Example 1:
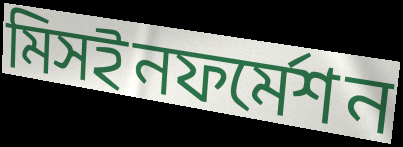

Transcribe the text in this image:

মিসইনফর্মেশন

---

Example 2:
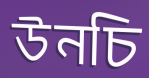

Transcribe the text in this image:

উনচি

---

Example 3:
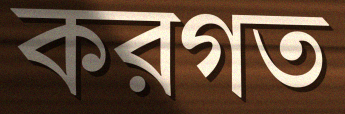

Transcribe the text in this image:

করগত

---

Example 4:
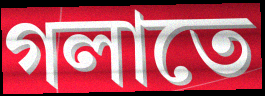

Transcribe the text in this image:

গলাতে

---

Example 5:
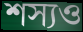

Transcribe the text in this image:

শস্যও